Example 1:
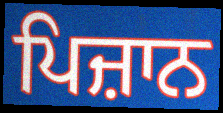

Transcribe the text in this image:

ਪਿਜ਼ਾਨ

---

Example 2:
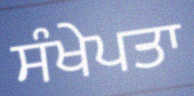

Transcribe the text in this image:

ਸੰਖੇਪਤਾ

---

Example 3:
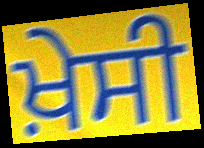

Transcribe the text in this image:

ਖ਼ੇਸੀ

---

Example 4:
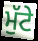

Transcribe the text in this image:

ਮੁੱਟੇ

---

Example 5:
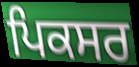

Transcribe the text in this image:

ਪਿਕਸਰ